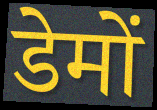
डेमों